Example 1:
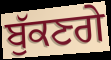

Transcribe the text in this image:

ਬੁੱਕਣਗੇ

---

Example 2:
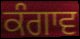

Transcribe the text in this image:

ਕੰਗਾਵ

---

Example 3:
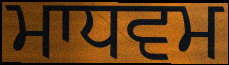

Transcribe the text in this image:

ਮਾਧਵਮ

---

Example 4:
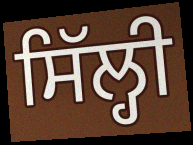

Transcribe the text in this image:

ਸਿੱਲ੍ਹੀ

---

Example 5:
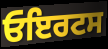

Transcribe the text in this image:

ਓਇਰਟਸ